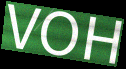
VOH